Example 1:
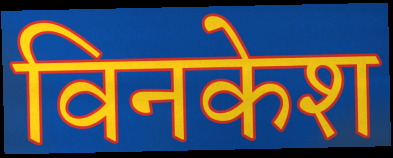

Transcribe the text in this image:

विनकेश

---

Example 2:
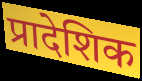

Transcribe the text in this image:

प्रादेशिक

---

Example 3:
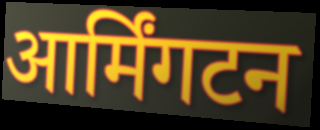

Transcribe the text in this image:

आर्मिंगटन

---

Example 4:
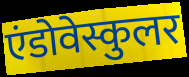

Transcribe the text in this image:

एंडोवेस्कुलर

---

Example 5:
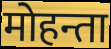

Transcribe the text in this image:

मोहन्ता